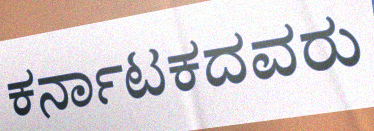
ಕರ್ನಾಟಕದವರು